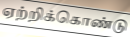
ஏற்றிக்கொண்டு